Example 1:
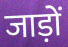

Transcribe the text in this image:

जाड़ों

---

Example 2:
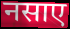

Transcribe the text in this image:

नसाए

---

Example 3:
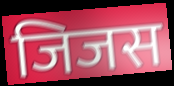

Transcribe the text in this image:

जिजस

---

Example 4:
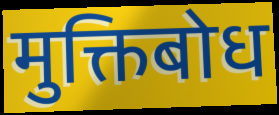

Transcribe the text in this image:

मुक्तिबोध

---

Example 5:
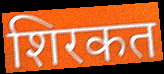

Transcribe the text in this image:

शिरकत